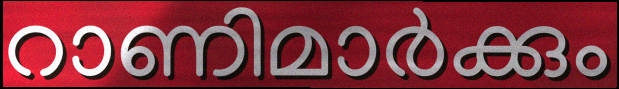
റാണിമാർക്കും